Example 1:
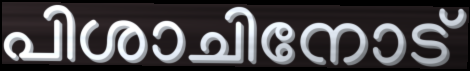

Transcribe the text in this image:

പിശാചിനോട്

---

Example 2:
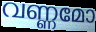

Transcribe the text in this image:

വണ്ണമോ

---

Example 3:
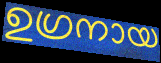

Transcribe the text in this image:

ഉഗ്രനായ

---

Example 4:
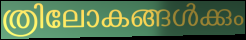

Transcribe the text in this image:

ത്രിലോകങ്ങൾക്കും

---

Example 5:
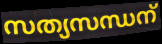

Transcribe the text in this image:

സത്യസന്ധന്